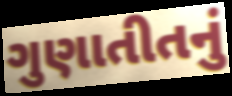
ગુણાતીતનું